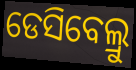
ଡେସିବେଲ୍ରୁ